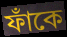
ফাঁকে